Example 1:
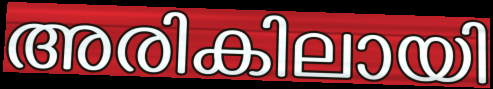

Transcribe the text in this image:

അരികിലായി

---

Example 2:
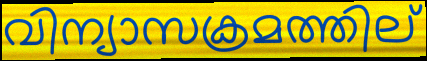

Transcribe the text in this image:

വിന്യാസക്രമത്തില്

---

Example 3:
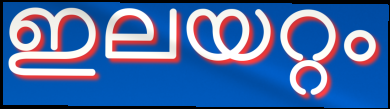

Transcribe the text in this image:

ഇലയറ്റം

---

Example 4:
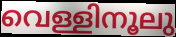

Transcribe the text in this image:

വെള്ളിനൂലു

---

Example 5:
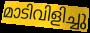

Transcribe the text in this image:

മാടിവിളിച്ചു